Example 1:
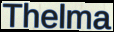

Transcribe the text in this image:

Thelma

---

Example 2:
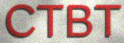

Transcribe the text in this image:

CTBT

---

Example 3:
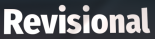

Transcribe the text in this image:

Revisional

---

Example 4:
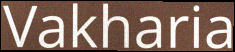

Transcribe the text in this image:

Vakharia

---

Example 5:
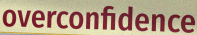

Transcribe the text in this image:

overconfidence